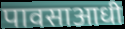
पावसाआधी